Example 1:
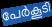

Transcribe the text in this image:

പേർകൂടി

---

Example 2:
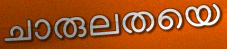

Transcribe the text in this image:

ചാരുലതയെ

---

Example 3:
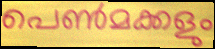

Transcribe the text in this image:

പെൺമക്കളും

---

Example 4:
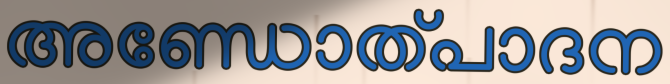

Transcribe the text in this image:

അണ്ഡോത്പാദന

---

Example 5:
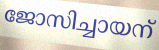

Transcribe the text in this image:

ജോസിച്ചായന്